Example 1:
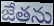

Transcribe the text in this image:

జేతను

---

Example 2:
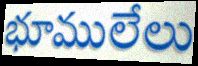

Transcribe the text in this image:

భూములేలు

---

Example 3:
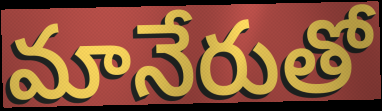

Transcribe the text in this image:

మానేరుతో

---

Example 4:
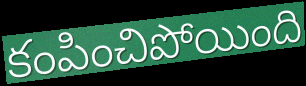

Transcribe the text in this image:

కంపించిపోయింది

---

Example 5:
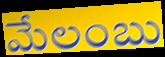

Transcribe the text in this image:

మేలంబు